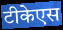
टीकेएस